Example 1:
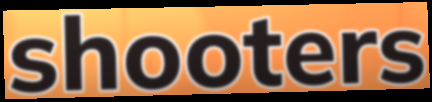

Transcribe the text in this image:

shooters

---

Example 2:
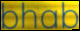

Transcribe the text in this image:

bhab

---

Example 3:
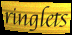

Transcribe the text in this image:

ringlets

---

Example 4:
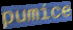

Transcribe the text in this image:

pumice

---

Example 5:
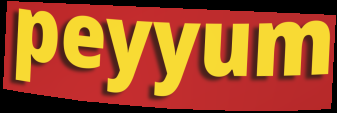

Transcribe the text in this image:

peyyum